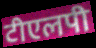
टीएलपी